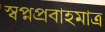
স্বপ্নপ্রবাহমাত্র